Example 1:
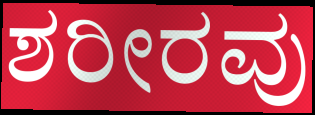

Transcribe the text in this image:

ಶರೀರವು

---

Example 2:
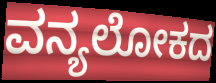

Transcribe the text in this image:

ವನ್ಯಲೋಕದ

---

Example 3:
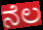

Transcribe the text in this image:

ನೆಲ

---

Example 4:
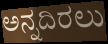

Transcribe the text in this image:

ಅನ್ನದಿರಲು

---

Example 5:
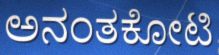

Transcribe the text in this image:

ಅನಂತಕೋಟಿ